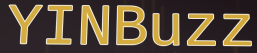
YINBuzz